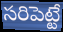
సరిపెట్టే